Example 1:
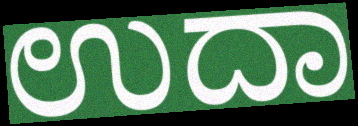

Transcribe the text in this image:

ಉದಾ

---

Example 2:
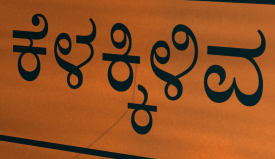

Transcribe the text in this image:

ಕೆಳಕ್ಕಿಳಿವ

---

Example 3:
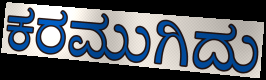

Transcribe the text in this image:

ಕರಮುಗಿದು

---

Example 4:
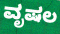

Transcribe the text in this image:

ವೃಷಲ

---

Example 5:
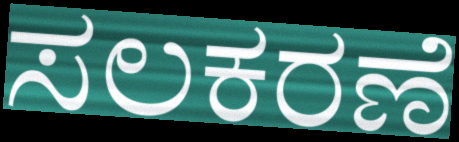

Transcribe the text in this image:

ಸಲಕರಣೆ